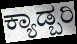
ಕ್ಯಾಡ್ಬರಿ